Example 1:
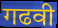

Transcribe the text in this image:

गढवी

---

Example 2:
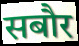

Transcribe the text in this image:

सबौर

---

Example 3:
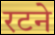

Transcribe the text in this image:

रटने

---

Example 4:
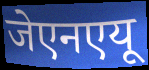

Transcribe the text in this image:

जेएनएयू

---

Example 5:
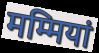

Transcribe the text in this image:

मम्मियां